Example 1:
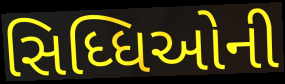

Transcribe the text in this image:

સિધ્ધિઓની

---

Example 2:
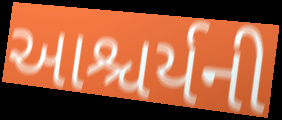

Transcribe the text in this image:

આશ્ચર્યની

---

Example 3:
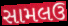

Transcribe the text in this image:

સામલઉ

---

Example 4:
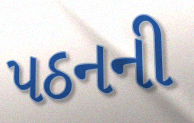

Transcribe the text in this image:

પઠનની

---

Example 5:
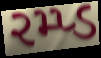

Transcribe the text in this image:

રમ્પ્ડ